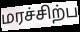
மரச்சிற்ப